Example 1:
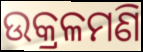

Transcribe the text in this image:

ଉକ୍ରଳମଣି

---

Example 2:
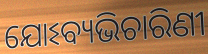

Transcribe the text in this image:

ଯୋଽବ୍ୟଭିଚାରିଣୀ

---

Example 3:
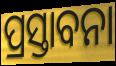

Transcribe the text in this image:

ପ୍ରସ୍ତାବନା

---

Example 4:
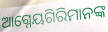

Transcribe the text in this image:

ଆଗ୍ନେୟଗିରିମାନଙ୍କ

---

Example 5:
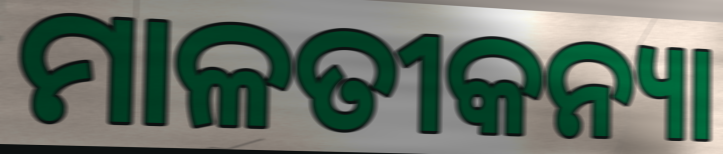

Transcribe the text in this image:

ମାଳତୀକନ୍ୟା